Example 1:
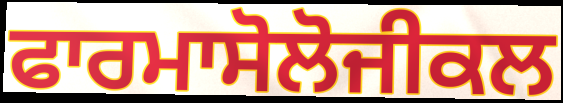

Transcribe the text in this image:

ਫਾਰਮਾਸੋਲੋਜੀਕਲ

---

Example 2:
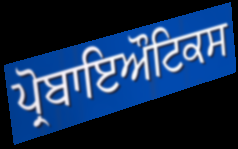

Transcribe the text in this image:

ਪ੍ਰੋਬਾਇਔਟਿਕਸ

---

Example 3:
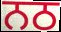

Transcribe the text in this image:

ਨਠ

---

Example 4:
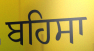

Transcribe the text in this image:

ਬਹਿਸਾ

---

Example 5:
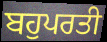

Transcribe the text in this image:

ਬਹੁਪਰਤੀ